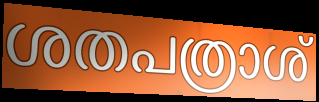
ശതപത്രാശ്